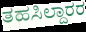
ತಹಸಿಲ್ದಾರರ